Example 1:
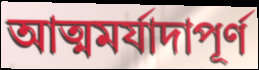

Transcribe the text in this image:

আত্মমর্যাদাপূর্ণ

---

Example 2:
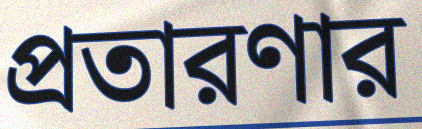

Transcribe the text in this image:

প্রতারণার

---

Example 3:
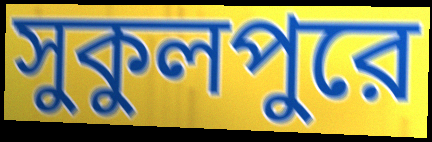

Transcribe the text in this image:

সুকুলপুরে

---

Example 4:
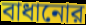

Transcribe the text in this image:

বাধানোর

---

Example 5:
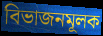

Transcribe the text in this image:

বিভাজনমূলক